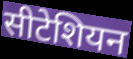
सीटेशियन